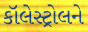
કૉલેસ્ટ્રોલને